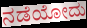
ನಡೆಯೋದು